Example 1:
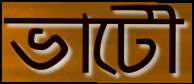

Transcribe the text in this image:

ভাটৌ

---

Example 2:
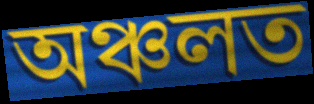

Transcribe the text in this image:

অঞ্চলত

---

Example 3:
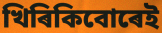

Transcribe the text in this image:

খিৰিকিবোৰেই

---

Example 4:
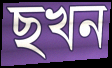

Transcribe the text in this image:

ছখন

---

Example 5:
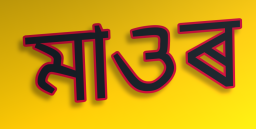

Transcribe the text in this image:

মাওৰ